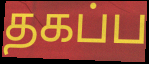
தகப்ப